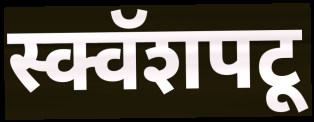
स्क्वॅशपटू